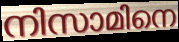
നിസാമിനെ